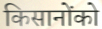
किसानोंको